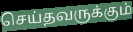
செய்தவருக்கும்